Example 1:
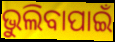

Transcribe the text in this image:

ଭୁଲିବାପାଇଁ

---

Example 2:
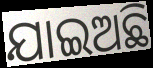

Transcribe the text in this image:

ଯାଇଅଛି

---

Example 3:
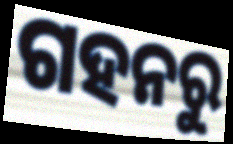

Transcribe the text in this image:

ଗହନରୁ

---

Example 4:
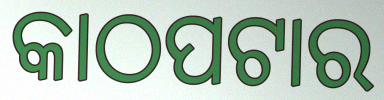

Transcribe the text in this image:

କାଠପଟାର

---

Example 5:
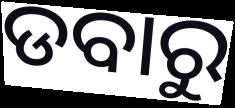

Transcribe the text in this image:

ଡବାରୁ